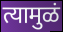
त्यामुळं